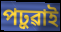
পঢ়ুৱাই